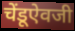
चेंडूऐवजी